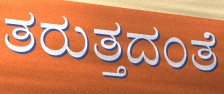
ತರುತ್ತದಂತೆ